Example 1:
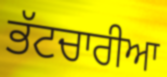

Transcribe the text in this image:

ਭੱਟਚਾਰੀਆ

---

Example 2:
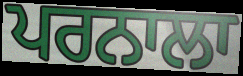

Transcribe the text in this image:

ਪਰਨਾਲਾ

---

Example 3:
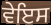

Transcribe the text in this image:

ਵੇਇਸ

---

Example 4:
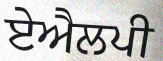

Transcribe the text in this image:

ਏਐਲਪੀ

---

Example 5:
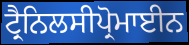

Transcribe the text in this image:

ਟ੍ਰੈਨਿਲਸੀਪ੍ਰੋਮਾਈਨ